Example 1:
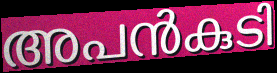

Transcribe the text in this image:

അപൻകുടി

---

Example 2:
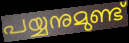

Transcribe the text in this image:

പയ്യനുമുണ്ട്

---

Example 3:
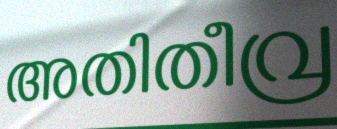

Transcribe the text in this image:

അതിതീവ്ര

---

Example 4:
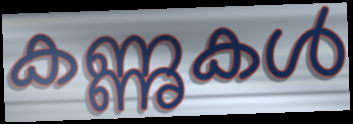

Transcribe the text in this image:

കണ്ണുകൾ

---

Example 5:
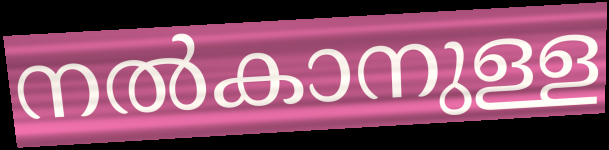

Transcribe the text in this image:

നൽകാനുള്ള